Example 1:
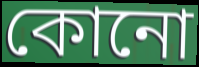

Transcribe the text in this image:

কোনো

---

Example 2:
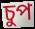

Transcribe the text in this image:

চুপ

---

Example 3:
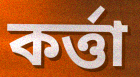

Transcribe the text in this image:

কৰ্ত্তা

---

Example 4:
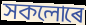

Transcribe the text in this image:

সকলোৰে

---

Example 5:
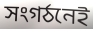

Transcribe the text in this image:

সংগঠনেই